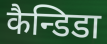
कैन्डिडा